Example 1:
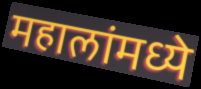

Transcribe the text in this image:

महालांमध्ये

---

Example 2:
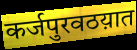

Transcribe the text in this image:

कर्जपुरवठय़ात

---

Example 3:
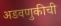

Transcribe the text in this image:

अडवणुकीची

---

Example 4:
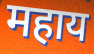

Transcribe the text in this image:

महाय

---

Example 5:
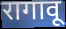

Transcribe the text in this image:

रागावू